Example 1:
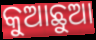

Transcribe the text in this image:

କୁଆଛୁଆ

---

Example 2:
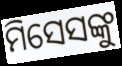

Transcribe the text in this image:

ମିସେସଙ୍କୁ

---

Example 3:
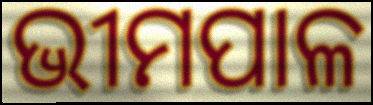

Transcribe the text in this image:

ଭୀମପାଳ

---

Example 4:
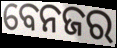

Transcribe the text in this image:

ବେନଜର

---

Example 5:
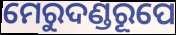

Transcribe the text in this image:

ମେରୁଦଣ୍ଡରୂପେ